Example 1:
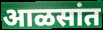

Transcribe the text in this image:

आळसांत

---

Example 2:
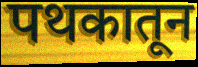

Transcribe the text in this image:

पथकातून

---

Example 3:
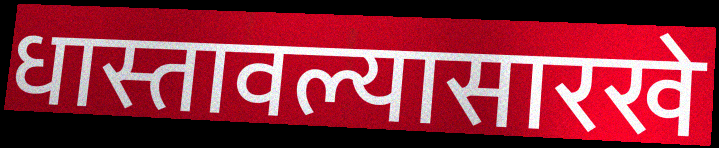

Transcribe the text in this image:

धास्तावल्यासारखे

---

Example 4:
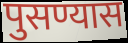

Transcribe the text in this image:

पुसण्यास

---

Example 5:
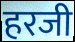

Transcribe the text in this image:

हरजी